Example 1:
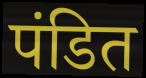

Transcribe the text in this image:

पंडित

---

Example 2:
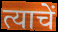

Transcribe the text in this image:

त्याचें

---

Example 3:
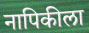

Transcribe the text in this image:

नापिकीला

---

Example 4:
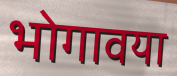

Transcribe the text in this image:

भोगावया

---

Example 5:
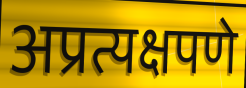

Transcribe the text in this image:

अप्रत्यक्षपणे